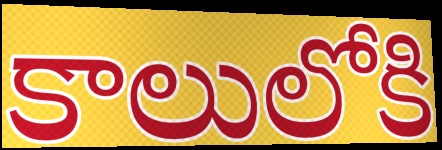
కాలులోకి